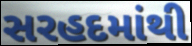
સરહદમાંથી